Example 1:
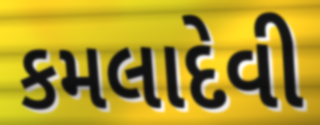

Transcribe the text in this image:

કમલાદેવી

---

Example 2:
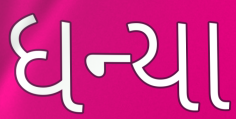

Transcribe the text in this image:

ધન્યા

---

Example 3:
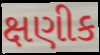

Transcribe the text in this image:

ક્ષણીક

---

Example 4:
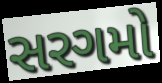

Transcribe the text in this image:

સરગમો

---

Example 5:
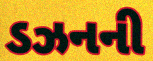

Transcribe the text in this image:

ડઝનની